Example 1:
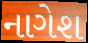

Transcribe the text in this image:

નાગેશ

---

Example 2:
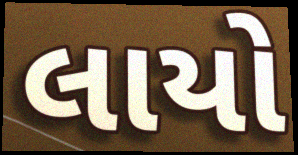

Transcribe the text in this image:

લાયો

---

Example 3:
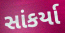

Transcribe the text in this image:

સાંકર્યા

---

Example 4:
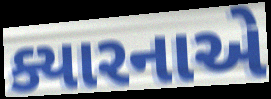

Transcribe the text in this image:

ક્યારનાએ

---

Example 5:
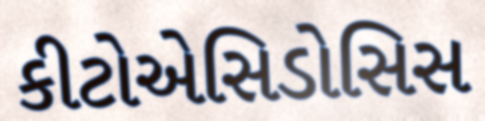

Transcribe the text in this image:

કીટોએસિડોસિસ